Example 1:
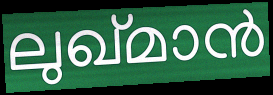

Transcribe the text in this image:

ലുഖ്മാൻ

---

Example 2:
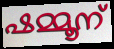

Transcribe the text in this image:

ഷമ്മൂന്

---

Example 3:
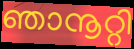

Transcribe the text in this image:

ഞാനൂറ്റി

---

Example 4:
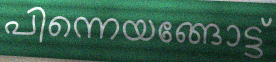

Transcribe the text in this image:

പിന്നെയങ്ങോട്ട്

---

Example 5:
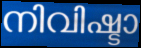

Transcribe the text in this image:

നിവിഷ്ടാ